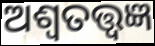
ଅଶ୍ୱତତ୍ତ୍ୱଜ୍ଞ